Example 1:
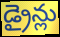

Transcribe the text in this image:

డ్రైన్లు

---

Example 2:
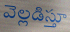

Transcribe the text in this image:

వెల్లడిస్తూ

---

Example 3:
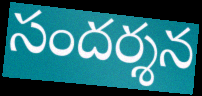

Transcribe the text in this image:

సందర్శన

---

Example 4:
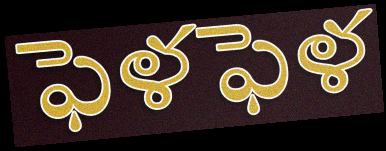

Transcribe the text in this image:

ఫెళఫెళ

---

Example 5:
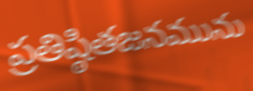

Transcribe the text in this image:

ప్రతిష్ఠితజనమును